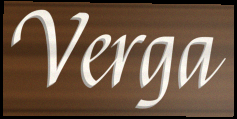
Verga